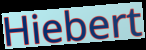
Hiebert